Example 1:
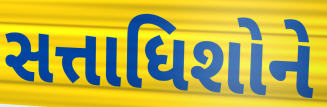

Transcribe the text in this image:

સત્તાધિશોને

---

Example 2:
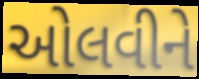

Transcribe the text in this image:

ઓલવીને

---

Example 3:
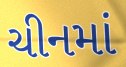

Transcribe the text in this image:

ચીનમાં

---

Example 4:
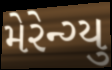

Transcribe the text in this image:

મેરેન્ગ્યુ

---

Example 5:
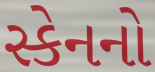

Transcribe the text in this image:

સ્કેનનો